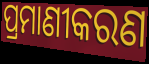
ପ୍ରମାଣୀକରଣ